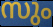
സും